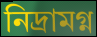
নিদ্ৰামগ্ন